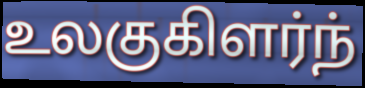
உலகுகிளர்ந்